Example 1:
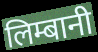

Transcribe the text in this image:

लिम्बानी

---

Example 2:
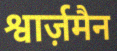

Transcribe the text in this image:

श्वार्ज़मैन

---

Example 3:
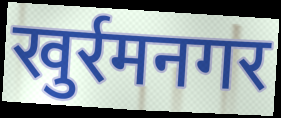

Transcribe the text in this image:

खुर्रमनगर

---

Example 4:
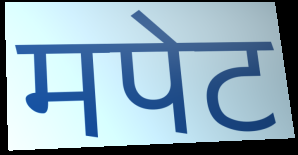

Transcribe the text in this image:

मपेट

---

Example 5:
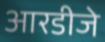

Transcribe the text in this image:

आरडीजे